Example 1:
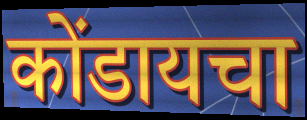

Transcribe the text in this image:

कोंडायचा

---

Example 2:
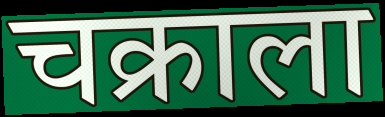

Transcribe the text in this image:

चक्राला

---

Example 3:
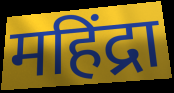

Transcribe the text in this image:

महिंद्रा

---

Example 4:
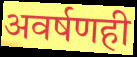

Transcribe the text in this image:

अवर्षणही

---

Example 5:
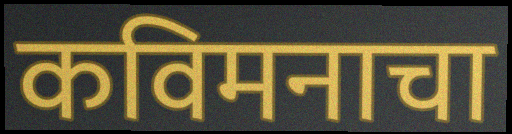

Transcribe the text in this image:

कविमनाचा